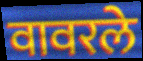
वावरले